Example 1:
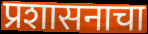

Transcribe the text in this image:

प्रशासनाचा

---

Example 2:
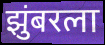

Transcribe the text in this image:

झुंबरला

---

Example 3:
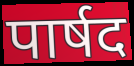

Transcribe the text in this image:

पार्षद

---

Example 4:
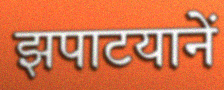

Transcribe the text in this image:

झपाटयानें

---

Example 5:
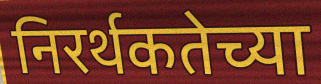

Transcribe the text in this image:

निरर्थकतेच्या